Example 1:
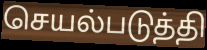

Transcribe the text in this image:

செயல்படுத்தி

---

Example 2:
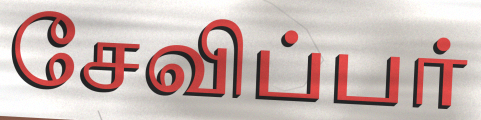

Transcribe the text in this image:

சேவிப்பர்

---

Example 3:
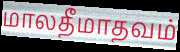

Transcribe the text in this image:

மாலதீமாதவம்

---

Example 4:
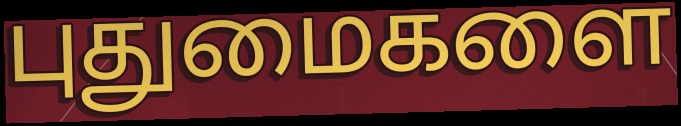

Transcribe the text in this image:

புதுமைகளை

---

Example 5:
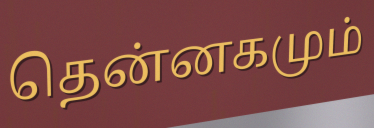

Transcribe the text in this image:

தென்னகமும்